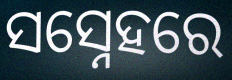
ସସ୍ନେହରେ